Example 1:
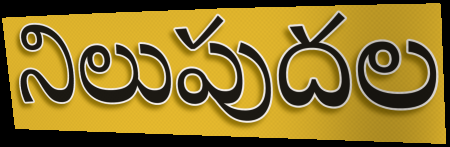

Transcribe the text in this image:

నిలుపుదల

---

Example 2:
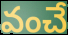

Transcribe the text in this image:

వంచే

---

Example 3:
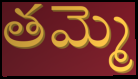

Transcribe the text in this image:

తమ్మె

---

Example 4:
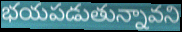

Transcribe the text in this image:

భయపడుతున్నావని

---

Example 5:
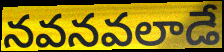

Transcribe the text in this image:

నవనవలాడే